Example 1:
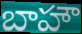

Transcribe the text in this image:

బాహౌ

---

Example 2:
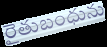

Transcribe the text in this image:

రైతుబంధును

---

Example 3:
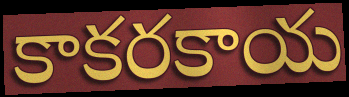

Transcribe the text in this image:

కాకరకాయ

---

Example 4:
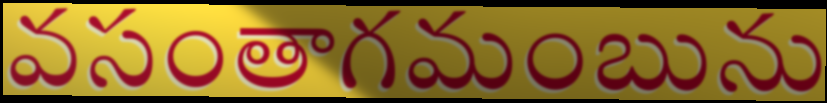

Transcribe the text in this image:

వసంతాగమంబును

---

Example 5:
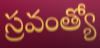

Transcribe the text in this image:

స్రవంత్యో